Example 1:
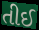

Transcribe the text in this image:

તીઈ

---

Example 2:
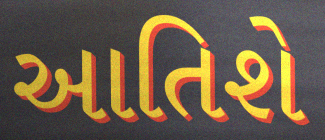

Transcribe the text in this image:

આતિશે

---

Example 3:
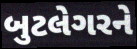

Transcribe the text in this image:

બુટલેગરને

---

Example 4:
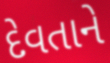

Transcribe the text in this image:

દેવતાને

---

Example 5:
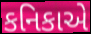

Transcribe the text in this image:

કનિકાએ